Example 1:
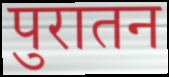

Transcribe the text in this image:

पुरातन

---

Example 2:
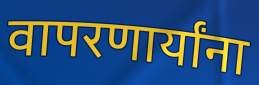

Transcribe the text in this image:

वापरणार्यांना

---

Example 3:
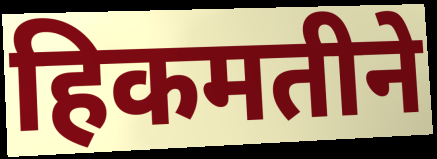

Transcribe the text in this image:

हिकमतीने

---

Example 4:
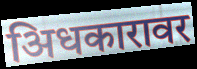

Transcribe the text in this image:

अिधकारावर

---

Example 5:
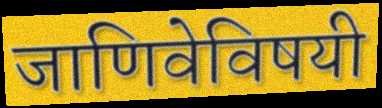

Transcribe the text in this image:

जाणिवेविषयी